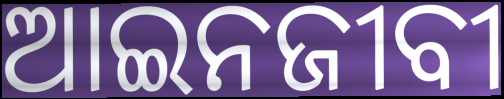
ଆଇନଜୀବୀ